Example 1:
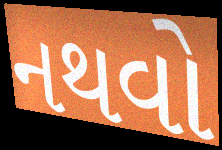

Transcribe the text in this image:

નથવો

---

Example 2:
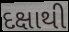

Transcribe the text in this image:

દક્ષાથી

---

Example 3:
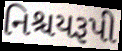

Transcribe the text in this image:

નિશ્ચયરૂપી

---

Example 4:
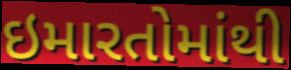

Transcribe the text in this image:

ઇમારતોમાંથી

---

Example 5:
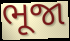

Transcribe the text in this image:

ભૂજા